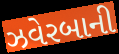
ઝવેરબાની